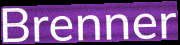
Brenner